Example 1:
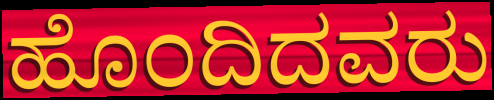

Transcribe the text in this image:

ಹೊಂದಿದವರು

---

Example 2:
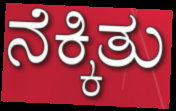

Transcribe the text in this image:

ನೆಕ್ಕಿತು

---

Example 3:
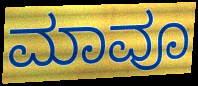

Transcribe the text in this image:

ಮಾವೂ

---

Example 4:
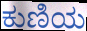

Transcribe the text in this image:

ಕುಣಿಯ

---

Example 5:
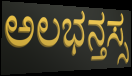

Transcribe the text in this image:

ಅಲಭನ್ತಸ್ಸ